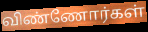
விண்ணோர்கள்